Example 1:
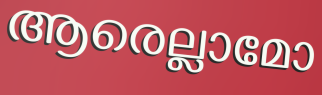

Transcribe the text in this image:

ആരെല്ലാമോ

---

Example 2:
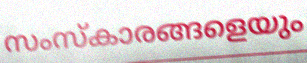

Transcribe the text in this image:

സംസ്കാരങ്ങളെയും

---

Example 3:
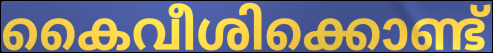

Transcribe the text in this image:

കൈവീശിക്കൊണ്ട്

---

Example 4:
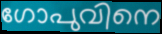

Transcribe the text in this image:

ഗോപുവിനെ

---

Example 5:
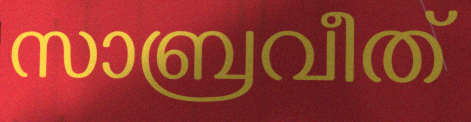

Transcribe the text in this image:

സാബ്രവീത്